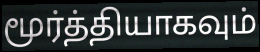
மூர்த்தியாகவும்